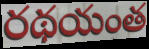
రథయంత